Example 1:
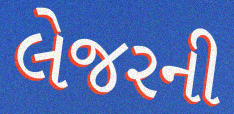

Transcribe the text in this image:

લેજરની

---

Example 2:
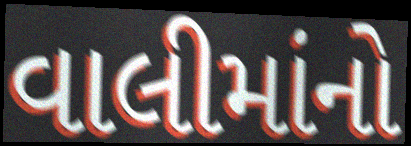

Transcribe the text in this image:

વાલીમાંનો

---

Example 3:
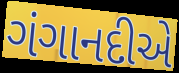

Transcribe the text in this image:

ગંગાનદીએ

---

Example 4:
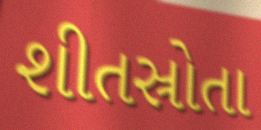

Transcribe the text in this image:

શીતસ્રોતા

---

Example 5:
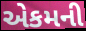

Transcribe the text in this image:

એકમની